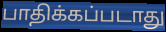
பாதிக்கப்படாது